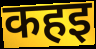
कहइ